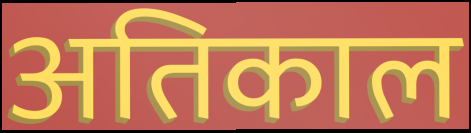
अतिकाल